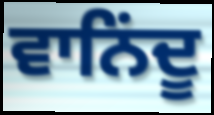
ਵਾਨਿਂਦੂ